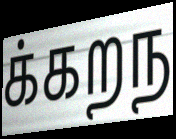
க்கறந